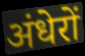
अंधेरों